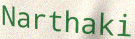
Narthaki